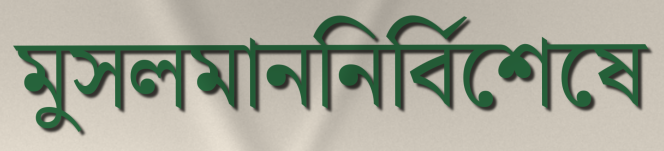
মুসলমাননির্বিশেষে